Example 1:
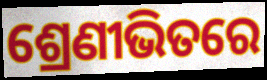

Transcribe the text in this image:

ଶ୍ରେଣୀଭିତରେ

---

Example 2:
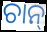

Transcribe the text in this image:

ଚାନ୍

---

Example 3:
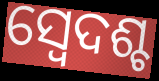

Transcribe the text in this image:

ସ୍ବେଦଶ୍ଚ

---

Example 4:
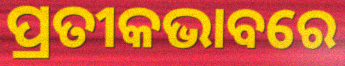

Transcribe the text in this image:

ପ୍ରତୀକଭାବରେ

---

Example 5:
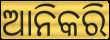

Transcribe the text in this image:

ଆନିକରି